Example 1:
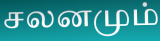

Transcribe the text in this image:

சலனமும்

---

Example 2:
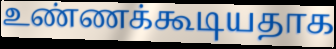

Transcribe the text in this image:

உண்ணக்கூடியதாக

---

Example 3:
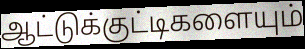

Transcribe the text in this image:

ஆட்டுக்குட்டிகளையும்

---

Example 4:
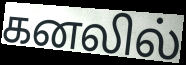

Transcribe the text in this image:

கனலில்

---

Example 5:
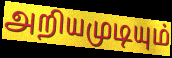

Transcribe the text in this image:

அறியமுடியும்